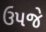
ઉપજે